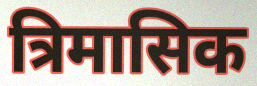
त्रिमासिक